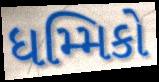
ધમ્મિકો